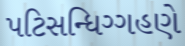
પટિસન્ધિગ્ગહણે